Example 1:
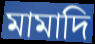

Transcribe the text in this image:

মামাদি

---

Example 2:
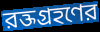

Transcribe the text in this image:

রক্তগ্রহণের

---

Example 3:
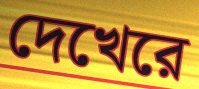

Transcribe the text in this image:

দেখেরে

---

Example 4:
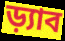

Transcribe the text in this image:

ড়্যাব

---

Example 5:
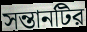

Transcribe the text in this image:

সন্তানটির